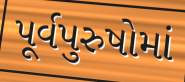
પૂર્વપુરુષોમાં